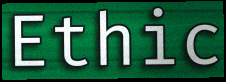
Ethic